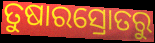
ତୁଷାରସ୍ରୋତରୁ